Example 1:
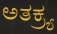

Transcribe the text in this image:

ಅತಕ್ರ್ಯ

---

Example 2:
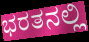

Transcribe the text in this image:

ಭರತನಲ್ಲಿ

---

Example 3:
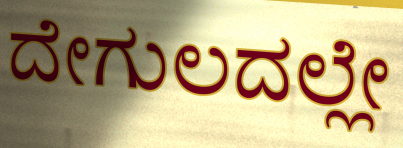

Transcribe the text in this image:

ದೇಗುಲದಲ್ಲೇ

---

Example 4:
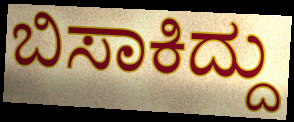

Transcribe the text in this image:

ಬಿಸಾಕಿದ್ದು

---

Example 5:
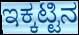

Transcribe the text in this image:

ಇಕ್ಕಟ್ಟಿನ